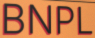
BNPL